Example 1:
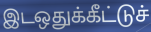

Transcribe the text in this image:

இடஒதுக்கீட்டுச்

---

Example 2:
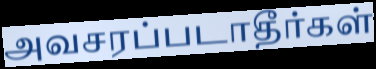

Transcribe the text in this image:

அவசரப்படாதீர்கள்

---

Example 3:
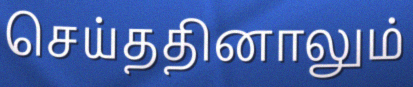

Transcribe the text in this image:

செய்ததினாலும்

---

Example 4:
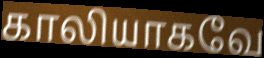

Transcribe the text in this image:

காலியாகவே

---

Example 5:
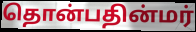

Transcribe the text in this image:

தொன்பதின்மர்